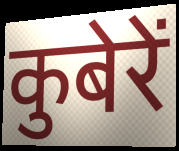
कुबेरें